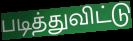
படித்துவிட்டு